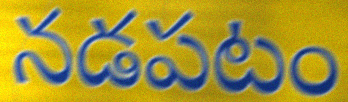
నడపటం